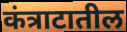
कंत्राटातील